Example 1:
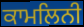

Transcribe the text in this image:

ਕਾਮਲਿਨੀ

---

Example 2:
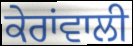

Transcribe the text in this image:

ਕੇਰਾਂਵਾਲੀ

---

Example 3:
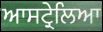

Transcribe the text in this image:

ਆਸਟ੍ਰੇਲਿਆ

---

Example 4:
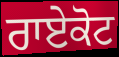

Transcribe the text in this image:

ਰਾਏਕੋਟ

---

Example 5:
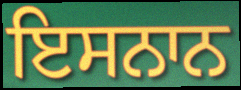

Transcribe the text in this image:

ਇਸਨਾਨ